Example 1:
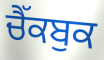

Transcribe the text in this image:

ਚੈੱਕਬੁਕ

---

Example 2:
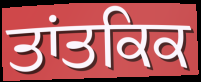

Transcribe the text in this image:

ਤਾਂਤਕਿਕ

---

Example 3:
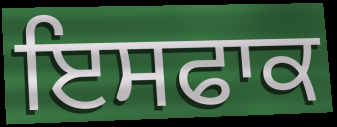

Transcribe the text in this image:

ਇਸਫਾਕ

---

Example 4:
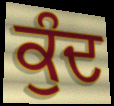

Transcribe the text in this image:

ਕੁੰਦ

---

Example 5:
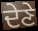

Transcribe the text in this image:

ਦੇਣੇ